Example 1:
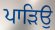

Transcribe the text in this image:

ਪਾੜਿਉ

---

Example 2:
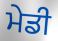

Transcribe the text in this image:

ਮੇਡੀ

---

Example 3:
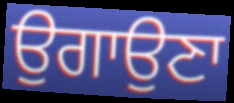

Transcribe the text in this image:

ਉਗਾਉਣਾ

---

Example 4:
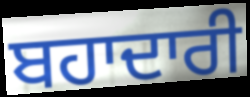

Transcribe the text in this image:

ਬਹਾਦਾਰੀ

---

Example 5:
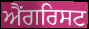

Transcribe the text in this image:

ਐਂਗਰਿਸਟ